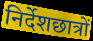
निर्देशछात्रों